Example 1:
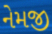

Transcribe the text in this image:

નેમજી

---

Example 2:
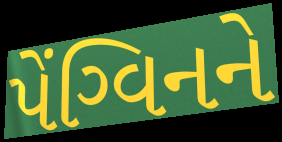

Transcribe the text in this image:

પેંગ્વિનને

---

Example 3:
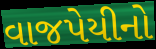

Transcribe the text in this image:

વાજપેયીનો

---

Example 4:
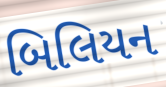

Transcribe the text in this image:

બિલિયન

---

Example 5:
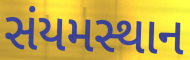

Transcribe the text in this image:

સંયમસ્થાન